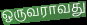
ஒருவராவது